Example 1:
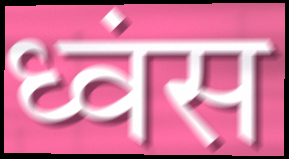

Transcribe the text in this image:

ध्वंस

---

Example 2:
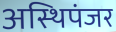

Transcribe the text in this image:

अस्थिपंजर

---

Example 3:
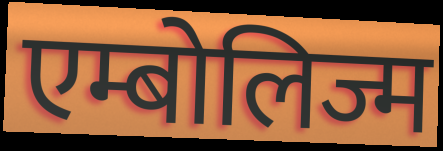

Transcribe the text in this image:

एम्बोलिज्म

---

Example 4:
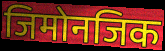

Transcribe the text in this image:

जिमोनजिक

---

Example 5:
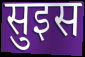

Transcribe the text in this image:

सुइस